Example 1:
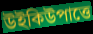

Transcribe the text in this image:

উইকিউপাত্তে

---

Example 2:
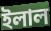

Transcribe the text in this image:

ইলাল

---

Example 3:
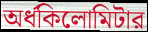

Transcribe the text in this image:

অর্ধকিলোমিটার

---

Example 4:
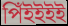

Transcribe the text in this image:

পিঁইইইই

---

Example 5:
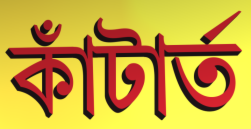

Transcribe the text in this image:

কাঁটার্ত